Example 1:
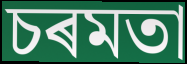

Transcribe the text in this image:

চৰমতা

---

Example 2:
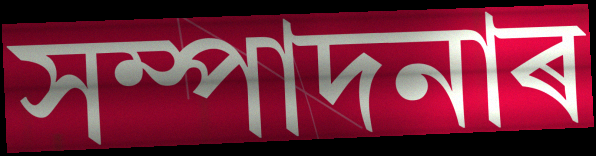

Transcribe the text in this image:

সম্পাদনাৰ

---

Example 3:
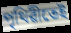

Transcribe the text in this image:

পৃথিৱীতেই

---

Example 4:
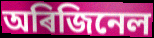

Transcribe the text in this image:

অৰিজিনেল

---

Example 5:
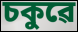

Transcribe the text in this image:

চকুৱে